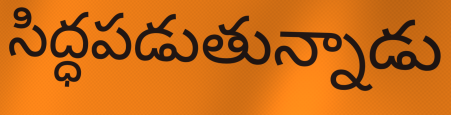
సిద్ధపడుతున్నాడు